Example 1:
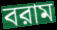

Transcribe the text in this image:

বরাম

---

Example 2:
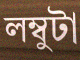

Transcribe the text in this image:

লম্বুটা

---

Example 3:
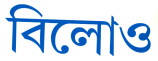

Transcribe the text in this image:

বিলোও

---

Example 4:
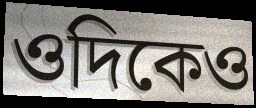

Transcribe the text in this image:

ওদিকেও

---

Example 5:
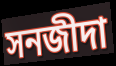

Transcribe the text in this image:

সনজীদা